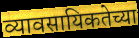
व्यावसायिकतेच्या